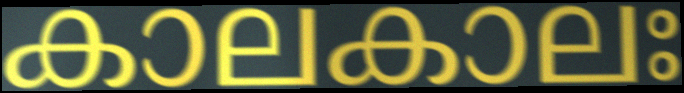
കാലകാലഃ